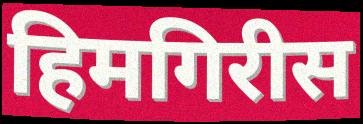
हिमगिरीस